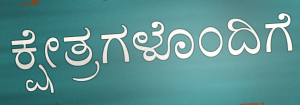
ಕ್ಷೇತ್ರಗಳೊಂದಿಗೆ